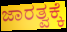
ಜಾರತ್ವಕ್ಕೆ